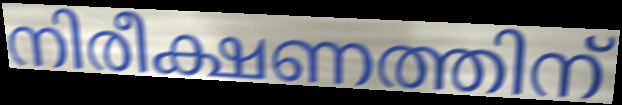
നിരീക്ഷണത്തിന്